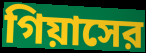
গিয়াসের